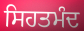
ਸਿਹਤਮੰਦ